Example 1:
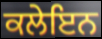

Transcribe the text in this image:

ਕਲੇਇਨ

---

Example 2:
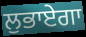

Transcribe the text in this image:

ਲੁਭਾਏਗਾ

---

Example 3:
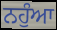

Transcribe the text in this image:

ਨਹੁੰਆ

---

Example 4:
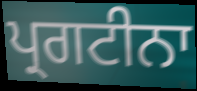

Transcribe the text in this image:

ਪ੍ਰਗਟੀਨਾ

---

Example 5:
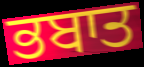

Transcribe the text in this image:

ਭਬਾਤ